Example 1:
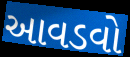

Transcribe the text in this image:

આવડવો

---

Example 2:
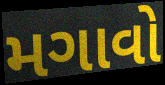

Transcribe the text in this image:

મગાવો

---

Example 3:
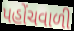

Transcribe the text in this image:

પહોંચવાળી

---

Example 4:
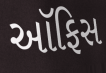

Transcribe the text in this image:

આૅફિસ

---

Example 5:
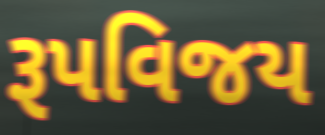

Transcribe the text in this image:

રૂપવિજય